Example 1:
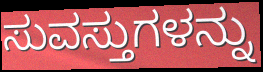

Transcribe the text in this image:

ಸುವಸ್ತುಗಳನ್ನು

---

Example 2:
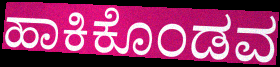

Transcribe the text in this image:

ಹಾಕಿಕೊಂಡವ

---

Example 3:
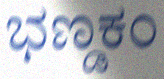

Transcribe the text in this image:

ಭಣ್ಡಕಂ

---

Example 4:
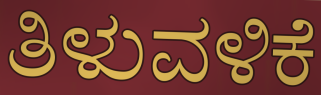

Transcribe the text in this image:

ತಿಳುವಳಿಕೆ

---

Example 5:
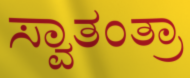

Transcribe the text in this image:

ಸ್ವಾತಂತ್ರಾ